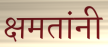
क्षमतांनी